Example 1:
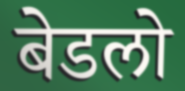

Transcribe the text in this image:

बेडलो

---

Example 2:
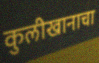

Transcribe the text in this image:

कुलीखानाचा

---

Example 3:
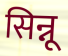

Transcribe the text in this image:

सिन्नू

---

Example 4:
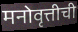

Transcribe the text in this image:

मनोवृत्तीची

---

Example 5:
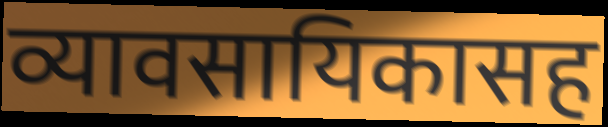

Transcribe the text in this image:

व्यावसायिकासह